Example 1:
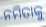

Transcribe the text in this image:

ନମିତାକୁ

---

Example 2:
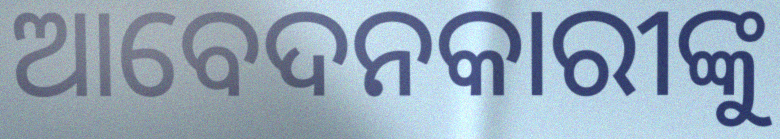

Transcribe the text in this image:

ଆବେଦନକାରୀଙ୍କୁ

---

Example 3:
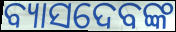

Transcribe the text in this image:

ବ୍ୟାସଦେବଙ୍କ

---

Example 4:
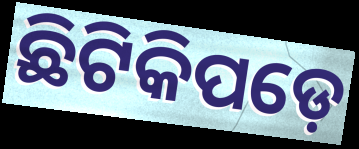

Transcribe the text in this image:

ଛିଟିକିପଡ଼େ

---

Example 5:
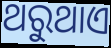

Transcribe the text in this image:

ଥରୁଥାଏ